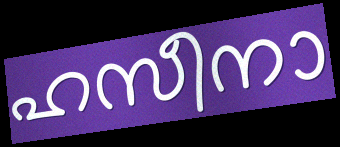
ഹസീനാ